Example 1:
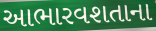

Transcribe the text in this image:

આભારવશતાના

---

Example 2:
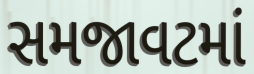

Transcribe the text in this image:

સમજાવટમાં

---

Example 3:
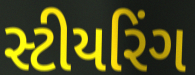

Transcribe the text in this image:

સ્ટીયરિંગ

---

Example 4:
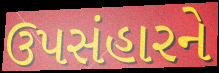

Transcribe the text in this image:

ઉપસંહારને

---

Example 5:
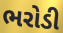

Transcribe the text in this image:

ભરોડી